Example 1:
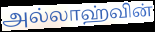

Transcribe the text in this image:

அல்லாஹ்வின்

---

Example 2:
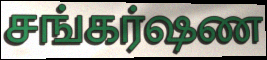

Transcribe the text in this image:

சங்கர்ஷண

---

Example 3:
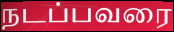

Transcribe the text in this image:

நடப்பவரை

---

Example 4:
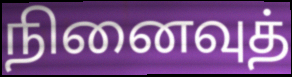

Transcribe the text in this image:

நினைவுத்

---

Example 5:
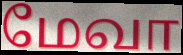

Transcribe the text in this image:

மேவா